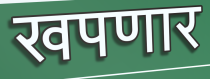
खपणार